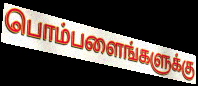
பொம்பளைங்களுக்கு